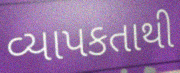
વ્યાપકતાથી